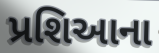
પ્રશિઆના